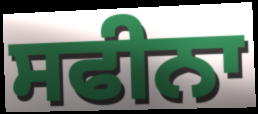
ਸਫੀਨਾ